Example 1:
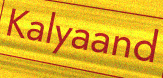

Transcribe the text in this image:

Kalyaand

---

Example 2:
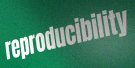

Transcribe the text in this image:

reproducibility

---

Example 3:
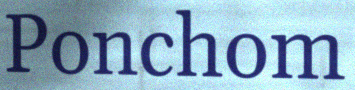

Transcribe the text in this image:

Ponchom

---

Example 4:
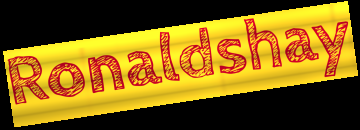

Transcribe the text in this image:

Ronaldshay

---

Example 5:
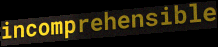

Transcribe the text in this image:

incomprehensible